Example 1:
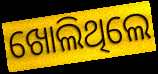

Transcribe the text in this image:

ଖୋଲିଥିଲେ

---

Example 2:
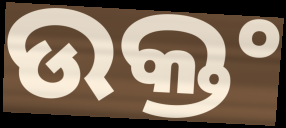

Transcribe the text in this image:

ଉକ୍ତଂ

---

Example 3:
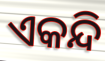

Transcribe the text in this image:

ଏକନ୍ଦି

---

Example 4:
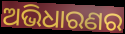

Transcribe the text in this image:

ଅଭିଧାରଣର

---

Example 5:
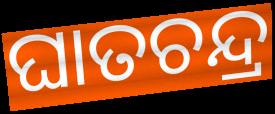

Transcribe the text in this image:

ଘାତଚନ୍ଦ୍ର